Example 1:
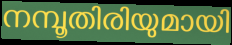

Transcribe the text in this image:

നമ്പൂതിരിയുമായി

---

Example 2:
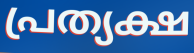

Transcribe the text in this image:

പ്രത്യക്ഷ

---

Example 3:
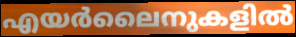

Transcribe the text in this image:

എയർലൈനുകളിൽ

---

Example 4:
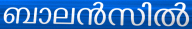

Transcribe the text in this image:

ബാലൻസിൽ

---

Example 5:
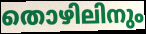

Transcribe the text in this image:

തൊഴിലിനും